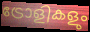
ട്രോളികളും